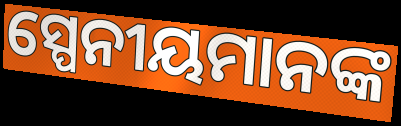
ସ୍ପେନୀୟମାନଙ୍କ